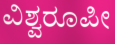
ವಿಶ್ವರೂಪೀ